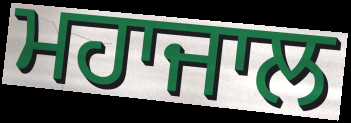
ਮਹਾਜਾਲ